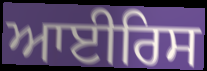
ਆਈਰਿਸ